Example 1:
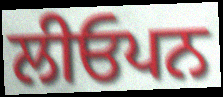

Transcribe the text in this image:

ਲੀਓਪਨ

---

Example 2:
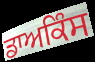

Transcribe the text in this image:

ਡਾਅਕਿੰਸ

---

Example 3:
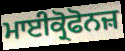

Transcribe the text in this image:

ਮਾਈਕ੍ਰੋਫੋਨਜ਼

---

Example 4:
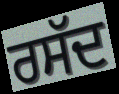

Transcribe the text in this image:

ਰਸੱਦ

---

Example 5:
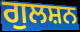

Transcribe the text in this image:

ਗੁਲਸ਼ਨ